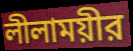
লীলাময়ীর